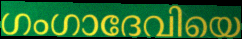
ഗംഗാദേവിയെ